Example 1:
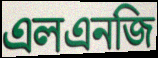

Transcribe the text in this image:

এলএনজি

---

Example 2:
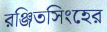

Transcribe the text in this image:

রঞ্জিতসিংহের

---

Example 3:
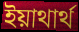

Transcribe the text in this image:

ইয়াথার্থ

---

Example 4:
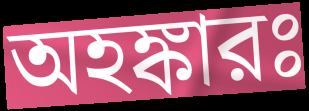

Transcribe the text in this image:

অহঙ্কারঃ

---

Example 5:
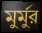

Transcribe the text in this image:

মুর্মুর